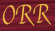
ORR